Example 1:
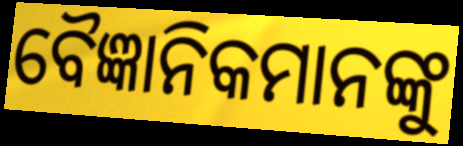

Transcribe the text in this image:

ବୈଜ୍ଞାନିକମାନଙ୍କୁ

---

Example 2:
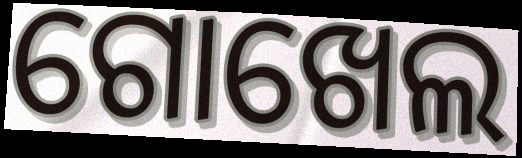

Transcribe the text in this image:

ଗୋଖେଲ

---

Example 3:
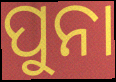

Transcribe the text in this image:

ପୁନା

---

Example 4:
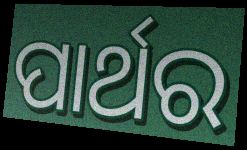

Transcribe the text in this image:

ପାର୍ଥର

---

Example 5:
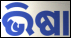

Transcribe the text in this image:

ଭିଷା